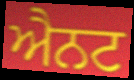
ਐਨਟ